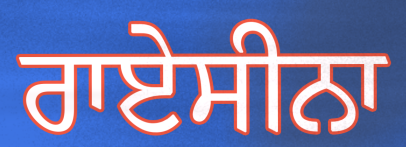
ਰਾਏਸੀਨਾ